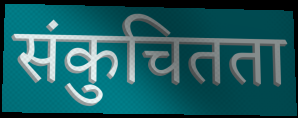
संकुचितता